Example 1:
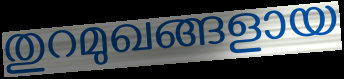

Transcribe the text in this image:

തുറമുഖങ്ങളായ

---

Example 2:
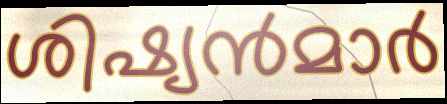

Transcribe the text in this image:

ശിഷ്യൻമാർ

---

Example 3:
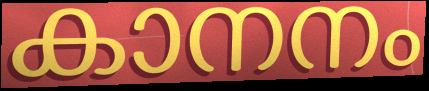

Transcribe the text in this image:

കാനനം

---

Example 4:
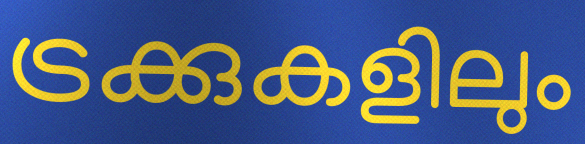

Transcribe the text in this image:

ട്രക്കുകളിലും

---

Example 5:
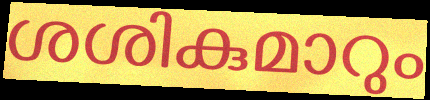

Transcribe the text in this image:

ശശികുമാറും